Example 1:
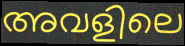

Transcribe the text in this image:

അവളിലെ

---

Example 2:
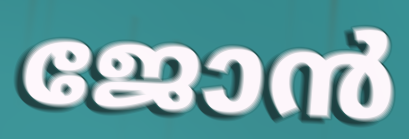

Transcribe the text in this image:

ജോൻ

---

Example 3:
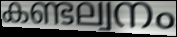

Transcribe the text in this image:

കണ്ടല്വനം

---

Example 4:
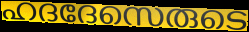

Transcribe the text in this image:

ഹദദേസെരുടെ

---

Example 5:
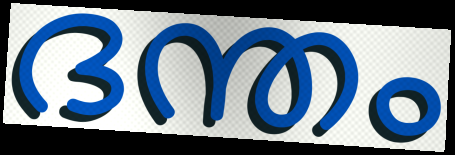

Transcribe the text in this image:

ദന്തം